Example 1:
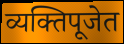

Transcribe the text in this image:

व्यक्तिपूजेत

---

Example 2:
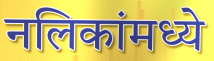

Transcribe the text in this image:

नलिकांमध्ये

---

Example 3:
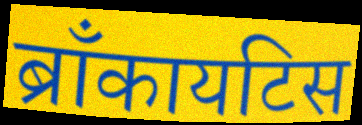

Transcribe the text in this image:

ब्राँकायटिस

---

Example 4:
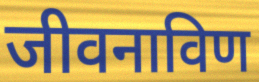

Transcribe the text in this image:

जीवनाविण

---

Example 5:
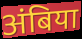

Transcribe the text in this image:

अंबिया